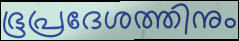
ഭൂപ്രദേശത്തിനും